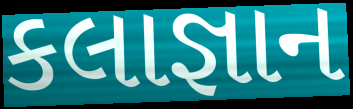
કલાજ્ઞાન